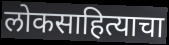
लोकसाहित्याचा